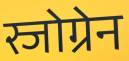
स्जोग्रेन